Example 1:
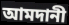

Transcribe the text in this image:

আমদানী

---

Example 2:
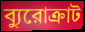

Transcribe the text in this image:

ব্যুরোক্রাট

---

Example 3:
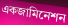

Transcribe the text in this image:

একজামিনেশন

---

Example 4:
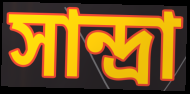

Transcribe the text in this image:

সান্দ্রা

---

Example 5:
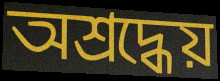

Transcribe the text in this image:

অশ্রদ্ধেয়